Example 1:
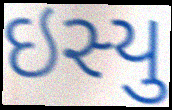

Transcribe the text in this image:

ઇસ્યુ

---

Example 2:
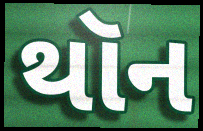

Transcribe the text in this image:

થૉન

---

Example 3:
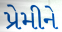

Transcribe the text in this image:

પ્રેમીને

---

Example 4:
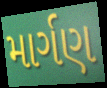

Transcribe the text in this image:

માર્ગણ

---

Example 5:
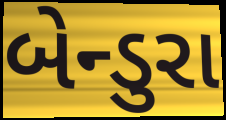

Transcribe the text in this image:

બેન્ડુરા